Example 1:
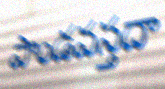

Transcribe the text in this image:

పాండవస్తదా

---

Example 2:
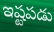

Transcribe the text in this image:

ఇష్టపడు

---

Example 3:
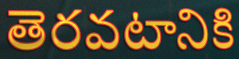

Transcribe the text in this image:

తెరవటానికి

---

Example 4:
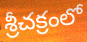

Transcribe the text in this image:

శ్రీచక్రంలో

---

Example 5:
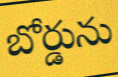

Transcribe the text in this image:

బోర్డును